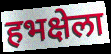
हभक्षेला